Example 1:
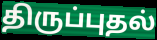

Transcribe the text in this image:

திருப்புதல்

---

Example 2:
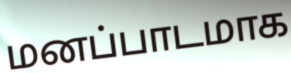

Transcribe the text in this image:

மனப்பாடமாக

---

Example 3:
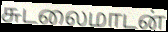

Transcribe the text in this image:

சுடலைமாடன்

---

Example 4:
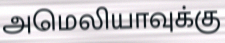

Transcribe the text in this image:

அமெலியாவுக்கு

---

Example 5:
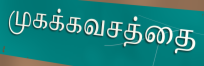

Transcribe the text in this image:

முகக்கவசத்தை